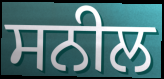
ਸਨੀਲ